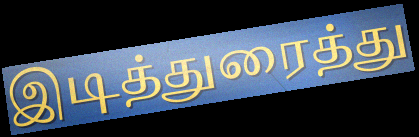
இடித்துரைத்து